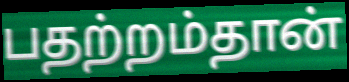
பதற்றம்தான்